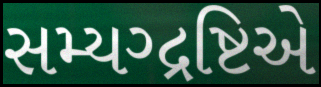
સમ્યગ્દ્રષ્ટિએ